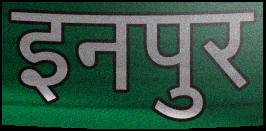
इनपुर